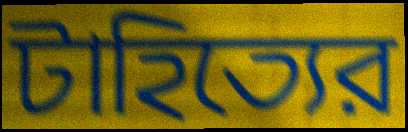
টাহিত্যের